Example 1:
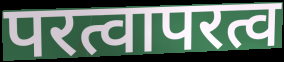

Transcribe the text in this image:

परत्वापरत्व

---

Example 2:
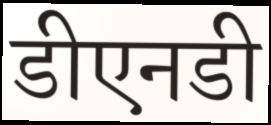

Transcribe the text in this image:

डीएनडी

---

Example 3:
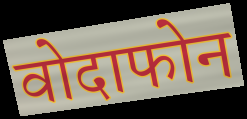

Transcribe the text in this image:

वोदाफोन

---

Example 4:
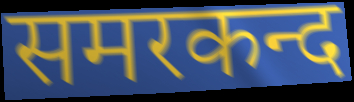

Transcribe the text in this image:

समरकन्द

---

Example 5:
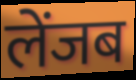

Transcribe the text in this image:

लेंजब